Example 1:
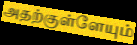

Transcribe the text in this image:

அதற்குள்ளேயும்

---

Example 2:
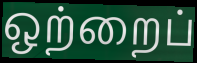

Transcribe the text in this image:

ஒற்றைப்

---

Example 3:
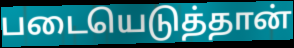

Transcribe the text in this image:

படையெடுத்தான்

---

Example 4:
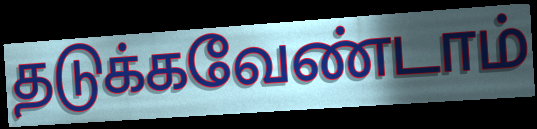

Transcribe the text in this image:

தடுக்கவேண்டாம்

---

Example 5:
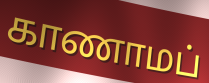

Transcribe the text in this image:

காணாமப்